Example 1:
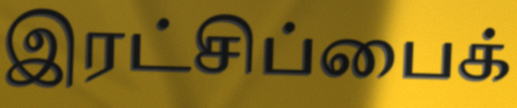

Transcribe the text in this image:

இரட்சிப்பைக்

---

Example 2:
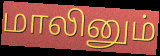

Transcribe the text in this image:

மாலினும்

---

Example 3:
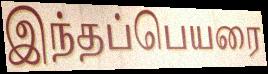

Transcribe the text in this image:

இந்தப்பெயரை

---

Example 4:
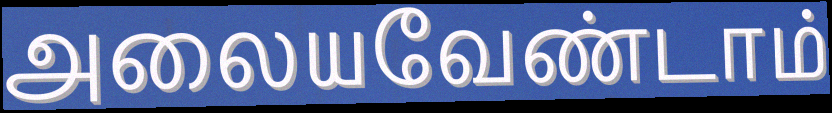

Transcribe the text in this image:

அலையவேண்டாம்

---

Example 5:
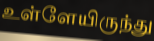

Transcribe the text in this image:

உள்ளேயிருந்து